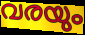
വരയും